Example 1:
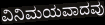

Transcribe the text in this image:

ವಿನಿಮಯವಾದವು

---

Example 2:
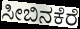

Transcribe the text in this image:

ಸೀಬಿನಕೆರೆ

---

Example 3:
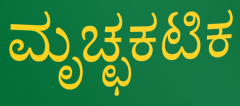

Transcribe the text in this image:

ಮೃಚ್ಛಕಟಿಕ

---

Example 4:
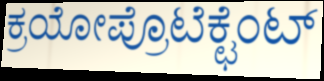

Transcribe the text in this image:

ಕ್ರಯೋಪ್ರೊಟೆಕ್ಟೆಂಟ್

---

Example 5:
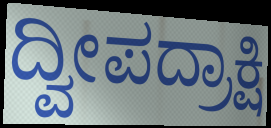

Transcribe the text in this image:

ದ್ವೀಪದ್ರಾಕ್ಷಿ